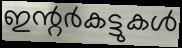
ഇന്റർകട്ടുകൾ